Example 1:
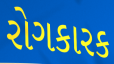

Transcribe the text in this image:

રોગકારક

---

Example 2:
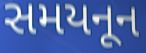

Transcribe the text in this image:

સમયનૂન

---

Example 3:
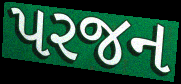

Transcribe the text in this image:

પરજન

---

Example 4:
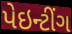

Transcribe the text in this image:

પેઇન્ટીંગ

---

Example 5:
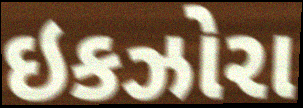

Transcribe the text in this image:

ઇકઝોરા